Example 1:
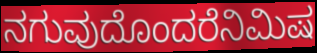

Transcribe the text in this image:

ನಗುವುದೊಂದರೆನಿಮಿಷ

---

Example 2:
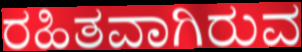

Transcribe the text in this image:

ರಹಿತವಾಗಿರುವ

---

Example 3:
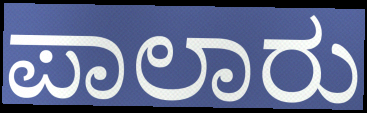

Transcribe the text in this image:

ಪಾಲಾರು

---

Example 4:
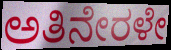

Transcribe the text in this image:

ಅತಿನೇರಳೇ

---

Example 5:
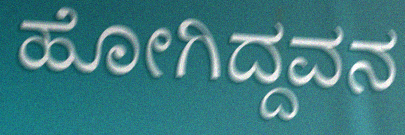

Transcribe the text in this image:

ಹೋಗಿದ್ದವನ